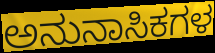
ಅನುನಾಸಿಕಗಳ